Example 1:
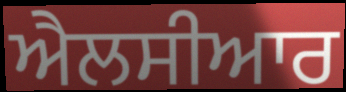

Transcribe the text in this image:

ਐਲਸੀਆਰ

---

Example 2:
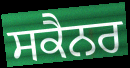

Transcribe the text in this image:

ਸਕੈਨਰ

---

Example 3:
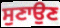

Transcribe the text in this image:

ਸੁਣਾਉਣ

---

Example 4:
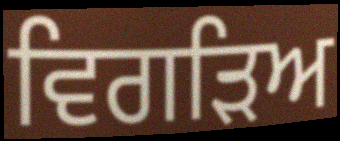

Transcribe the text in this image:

ਵਿਗੜਿਅ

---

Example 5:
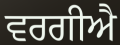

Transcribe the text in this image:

ਵਰਗੀਐ